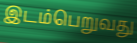
இடம்பெறுவது